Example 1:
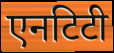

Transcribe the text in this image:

एनटिटी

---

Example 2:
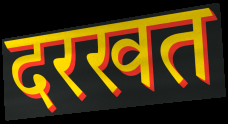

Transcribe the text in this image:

दरखत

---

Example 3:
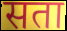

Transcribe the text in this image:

सता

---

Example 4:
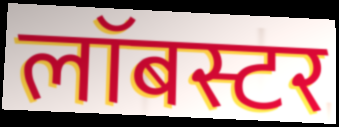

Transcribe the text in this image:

लॉबस्टर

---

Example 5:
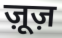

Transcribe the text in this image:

ज़ूज़